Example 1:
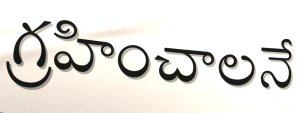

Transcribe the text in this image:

గ్రహించాలనే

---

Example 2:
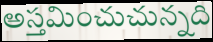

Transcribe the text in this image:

అస్తమించుచున్నది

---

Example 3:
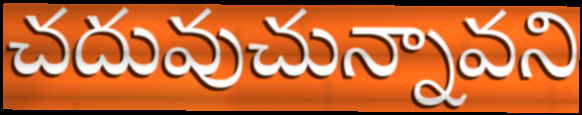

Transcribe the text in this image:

చదువుచున్నావని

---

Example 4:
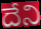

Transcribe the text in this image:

దేని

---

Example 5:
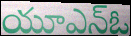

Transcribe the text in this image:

యూఎన్ఓ